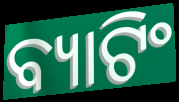
ବ୍ୟାଟିଂ